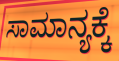
ಸಾಮಾನ್ಯಕ್ಕೆ